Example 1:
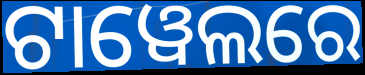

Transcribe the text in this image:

ଟାୱେଲରେ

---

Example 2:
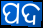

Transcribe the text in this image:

ପଦ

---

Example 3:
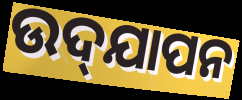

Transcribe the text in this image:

ଉଦ୍‌ଯାପନ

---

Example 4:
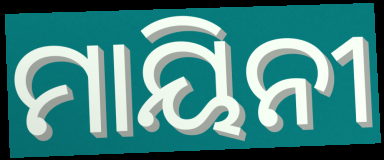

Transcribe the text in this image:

ମାୟିନୀ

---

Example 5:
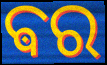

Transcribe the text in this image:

ଵର